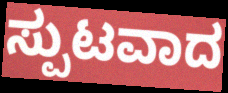
ಸ್ಪುಟವಾದ